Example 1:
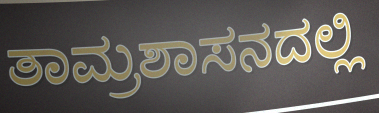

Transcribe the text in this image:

ತಾಮ್ರಶಾಸನದಲ್ಲಿ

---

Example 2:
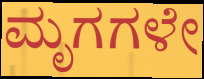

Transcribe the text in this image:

ಮೃಗಗಳೇ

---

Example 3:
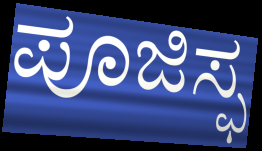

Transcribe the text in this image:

ಪೂಜಿಸ್ಫ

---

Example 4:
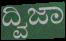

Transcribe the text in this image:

ದ್ವಿಜಾ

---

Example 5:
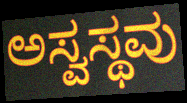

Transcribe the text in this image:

ಅಸ್ವಸ್ಥವು